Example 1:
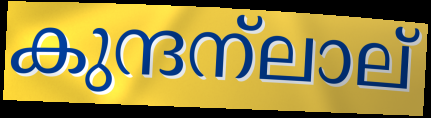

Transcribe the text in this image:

കുന്ദന്ലാല്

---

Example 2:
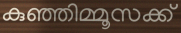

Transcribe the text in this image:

കുഞ്ഞിമ്മൂസക്ക്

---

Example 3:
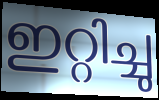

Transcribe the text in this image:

ഇറ്റിച്ചു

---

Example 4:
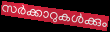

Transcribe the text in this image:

സർക്കാറുകൾക്കും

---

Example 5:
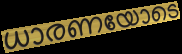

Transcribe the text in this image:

ധാരണയോടെ